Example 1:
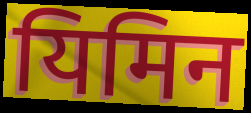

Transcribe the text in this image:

यिमिन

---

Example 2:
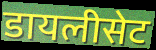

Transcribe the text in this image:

डायलीसेट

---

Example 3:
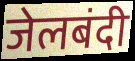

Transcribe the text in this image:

जेलबंदी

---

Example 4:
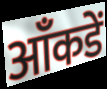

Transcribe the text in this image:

आँकडें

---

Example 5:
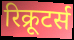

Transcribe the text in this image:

रिक्रूटर्स